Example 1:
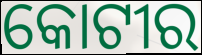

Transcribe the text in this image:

କୋଟୀର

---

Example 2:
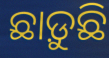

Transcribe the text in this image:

ଛାଡ଼ୁଛି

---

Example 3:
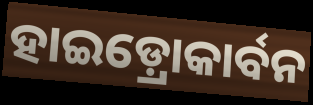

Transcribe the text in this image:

ହାଇଡ଼୍ରୋକାର୍ବନ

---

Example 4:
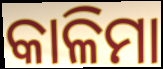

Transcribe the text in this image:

କାଳିମା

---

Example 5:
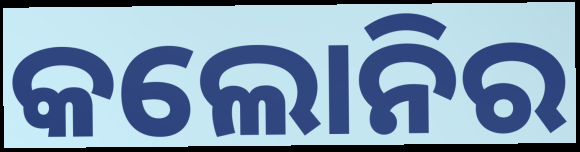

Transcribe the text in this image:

କଲୋନିର